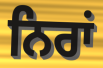
ਨਿਰਾਂ